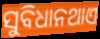
ସୁବିଧାନଥାଏ